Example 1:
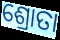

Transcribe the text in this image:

ଶ୍ରୋତା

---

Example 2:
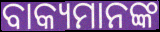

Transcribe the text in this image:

ବାକ୍ୟମାନଙ୍କ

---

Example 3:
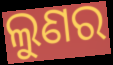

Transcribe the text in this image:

ଲୁଣର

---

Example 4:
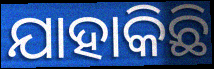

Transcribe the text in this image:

ଯାହାକିଛି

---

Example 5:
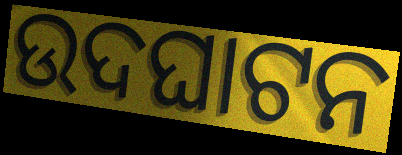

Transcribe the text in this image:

ଉଦଘାଟନ